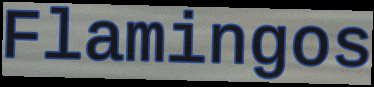
Flamingos